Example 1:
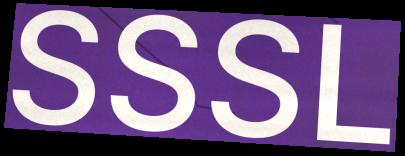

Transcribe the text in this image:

SSSL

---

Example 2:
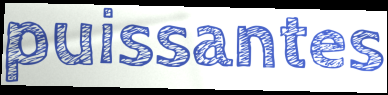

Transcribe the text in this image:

puissantes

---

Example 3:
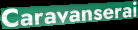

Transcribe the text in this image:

Caravanserai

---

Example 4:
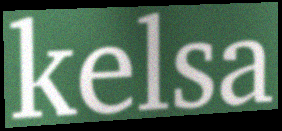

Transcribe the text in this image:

kelsa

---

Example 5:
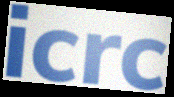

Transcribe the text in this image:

icrc